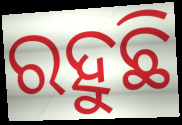
ରହୁଛି